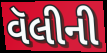
વૅલીની